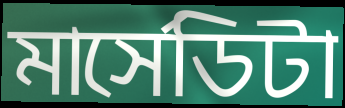
মার্সেডিটা